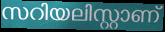
സറിയലിസ്റ്റാണ്